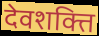
देवशक्ति